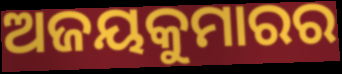
ଅଜୟକୁମାରର